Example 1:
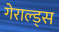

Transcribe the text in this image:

गेराल्ड्स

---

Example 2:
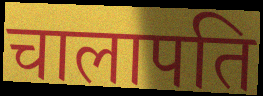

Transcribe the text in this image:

चालापति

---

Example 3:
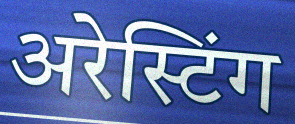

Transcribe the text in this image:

अरेस्टिंग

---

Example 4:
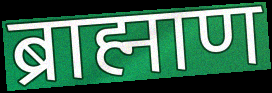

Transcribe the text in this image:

ब्राह्माण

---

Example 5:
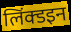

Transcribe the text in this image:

लिंक्‍डइन